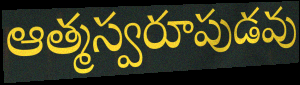
ఆత్మస్వరూపుడవు